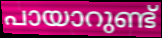
പായാറുണ്ട്